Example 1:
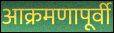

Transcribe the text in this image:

आक्रमणापूर्वी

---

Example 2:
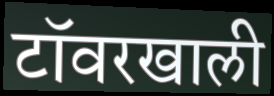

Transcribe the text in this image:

टॉवरखाली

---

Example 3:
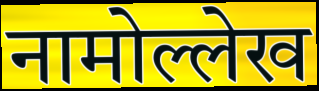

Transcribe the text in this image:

नामोल्लेख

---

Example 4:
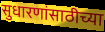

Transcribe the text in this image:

सुधारणांसाठीच्या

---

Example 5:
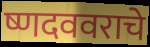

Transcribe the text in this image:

ष्णदववराचे